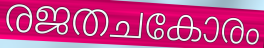
രജതചകോരം